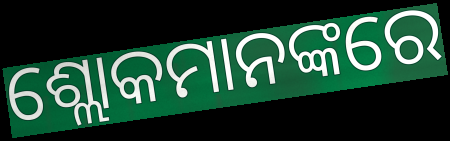
ଶ୍ଲୋକମାନଙ୍କରେ